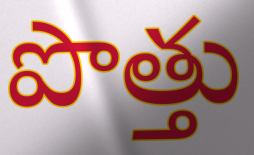
పొత్తు